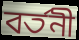
বৰ্তনী